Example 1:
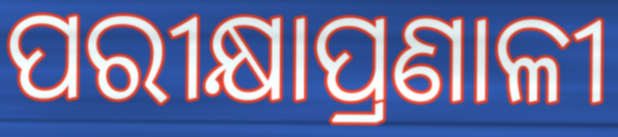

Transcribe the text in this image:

ପରୀକ୍ଷାପ୍ରଣାଳୀ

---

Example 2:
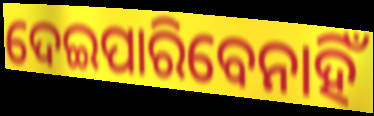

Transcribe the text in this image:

ଦେଇପାରିବେନାହିଁ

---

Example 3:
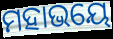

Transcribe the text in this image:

ମହାଭୟେ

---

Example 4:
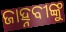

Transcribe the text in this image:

ଜାହ୍ନବୀଙ୍କୁ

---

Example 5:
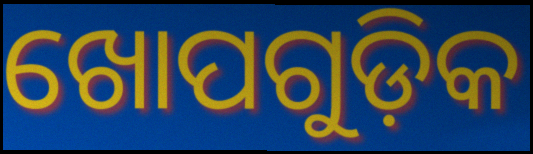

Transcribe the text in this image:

ଖୋପଗୁଡ଼ିକ